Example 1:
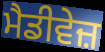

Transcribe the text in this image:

ਮੈਡੀਵੇਜ਼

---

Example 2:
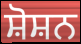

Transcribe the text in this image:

ਸ਼ੋਸ਼ਨ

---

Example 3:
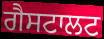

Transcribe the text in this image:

ਗੈਸਟਾਲਟ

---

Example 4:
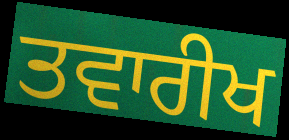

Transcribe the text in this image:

ਤਵਾਰੀਖ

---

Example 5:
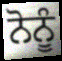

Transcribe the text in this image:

ਨੋਨੂੰ